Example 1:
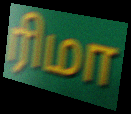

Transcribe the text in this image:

ரிமா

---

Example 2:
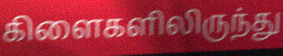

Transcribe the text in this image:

கிளைகளிலிருந்து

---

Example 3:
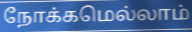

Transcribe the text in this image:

நோக்கமெல்லாம்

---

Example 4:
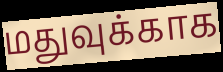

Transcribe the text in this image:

மதுவுக்காக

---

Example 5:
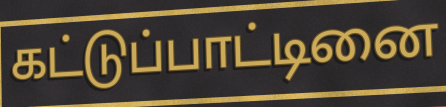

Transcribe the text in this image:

கட்டுப்பாட்டினை